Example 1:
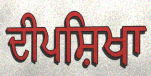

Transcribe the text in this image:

ਦੀਪਸ਼ਿਖਾ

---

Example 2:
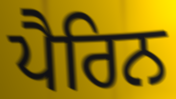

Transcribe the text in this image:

ਪੈਰਿਨ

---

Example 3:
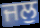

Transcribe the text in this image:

ਜਲੁ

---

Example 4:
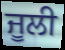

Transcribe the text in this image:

ਜੂਲੀ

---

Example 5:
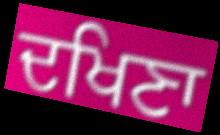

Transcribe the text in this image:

ਦਖਿਣਾ